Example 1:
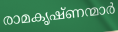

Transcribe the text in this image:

രാമകൃഷ്ണന്മാർ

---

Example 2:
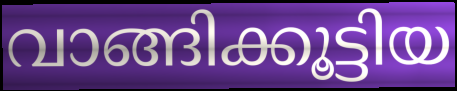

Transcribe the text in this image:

വാങ്ങിക്കൂട്ടിയ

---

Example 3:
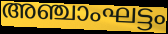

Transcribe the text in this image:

അഞ്ചാംഘട്ടം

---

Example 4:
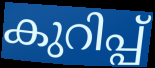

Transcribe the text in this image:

കുറിപ്പ്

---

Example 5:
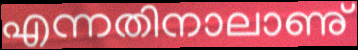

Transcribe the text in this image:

എന്നതിനാലാണു്